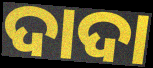
ଦାଦା